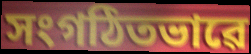
সংগঠিতভাৱে